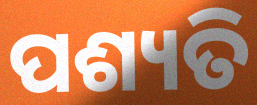
ପଶ୍ୟତି